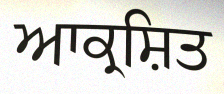
ਆਕ੍ਰਸ਼ਿਤ